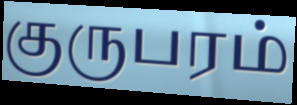
குருபரம்